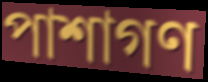
পাশাগণ